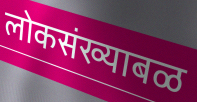
लोकसंख्याबळ